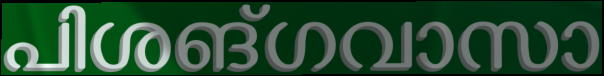
പിശങ്ഗവാസാ